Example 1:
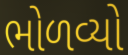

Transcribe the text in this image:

ભોળવ્યો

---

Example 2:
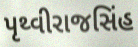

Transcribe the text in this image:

પૃથ્વીરાજસિંહ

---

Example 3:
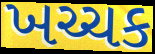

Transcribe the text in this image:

ખચ્ચક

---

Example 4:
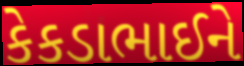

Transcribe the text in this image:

કેકડાભાઈને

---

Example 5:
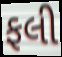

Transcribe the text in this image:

ફલી